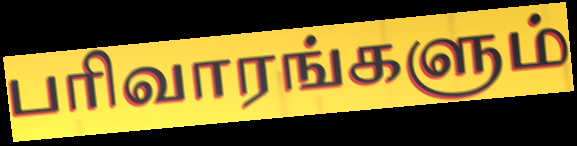
பரிவாரங்களும்